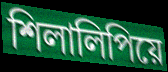
শিলালিপিয়ে